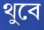
থুবে